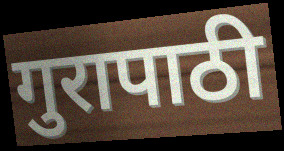
गुरापाठी